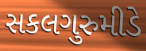
સકલગુરુમીડે